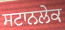
ਸਟਾਨਲੇਕ